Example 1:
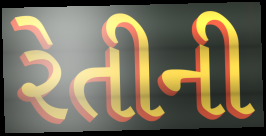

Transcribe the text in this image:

રેતીની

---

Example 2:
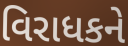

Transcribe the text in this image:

વિરાધકને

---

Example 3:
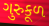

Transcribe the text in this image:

ગુરુકૂળ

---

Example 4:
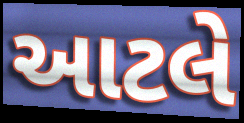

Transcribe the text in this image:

આટલે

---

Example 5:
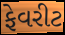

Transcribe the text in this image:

ફેવરીટ